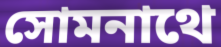
সোমনাথে